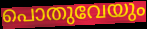
പൊതുവേയും